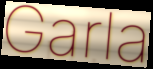
Garla